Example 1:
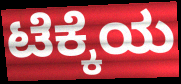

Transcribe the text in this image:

ಟೆಕ್ಕೆಯ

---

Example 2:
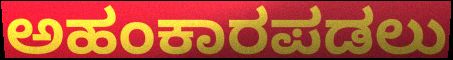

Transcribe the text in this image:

ಅಹಂಕಾರಪಡಲು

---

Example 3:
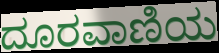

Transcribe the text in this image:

ದೂರವಾಣಿಯ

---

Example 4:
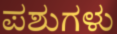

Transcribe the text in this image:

ಪಶುಗಳು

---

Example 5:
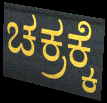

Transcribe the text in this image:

ಚಕ್ರಕ್ಕೆ